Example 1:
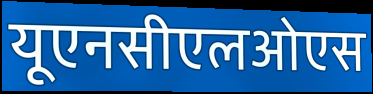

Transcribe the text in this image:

यूएनसीएलओएस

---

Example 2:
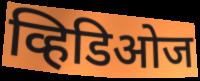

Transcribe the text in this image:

व्हिडिओज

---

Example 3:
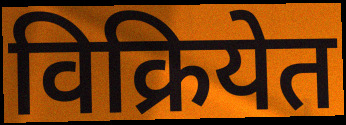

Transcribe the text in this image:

विक्रियेत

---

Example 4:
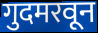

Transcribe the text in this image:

गुदमरवून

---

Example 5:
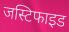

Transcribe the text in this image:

जस्टिफाइड